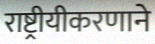
राष्ट्रीयीकरणाने